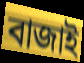
বাজাই